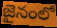
జైనంలో